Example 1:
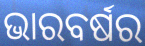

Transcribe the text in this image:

ଭାରବର୍ଷର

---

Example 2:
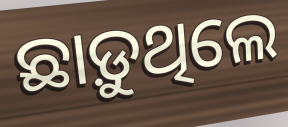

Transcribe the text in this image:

ଛାଡ଼ୁଥିଲେ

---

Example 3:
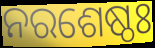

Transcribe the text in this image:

ନରଶେଷ୍ଠଃ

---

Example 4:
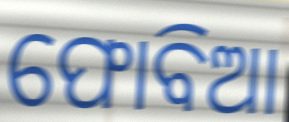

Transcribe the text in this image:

ଫୋବିଆ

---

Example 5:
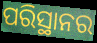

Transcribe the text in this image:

ପରିସ୍ଥାନର